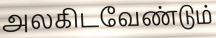
அலகிடவேண்டும்